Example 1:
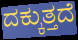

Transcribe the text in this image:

ದಕ್ಕುತ್ತದೆ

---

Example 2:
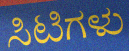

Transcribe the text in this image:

ಸಿಟಿಗಳು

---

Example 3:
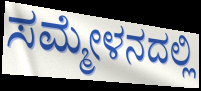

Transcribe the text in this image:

ಸಮ್ಮೇಳನದಲ್ಲಿ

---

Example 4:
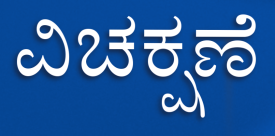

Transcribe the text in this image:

ವಿಚಕ್ಷಣೆ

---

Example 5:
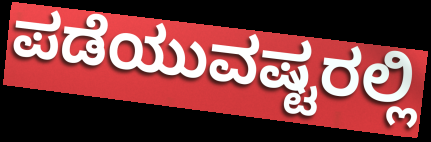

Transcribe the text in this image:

ಪಡೆಯುವಷ್ಟರಲ್ಲಿ